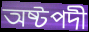
অষ্টপদী